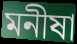
মনীষা